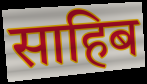
साहिब